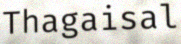
Thagaisal